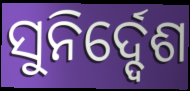
ସୁନିର୍ଦ୍ଦେଶ